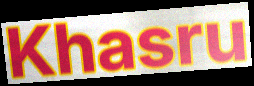
Khasru